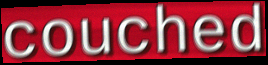
couched